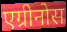
एग्रीनोस